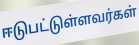
ஈடுபட்டுள்ளவர்கள்